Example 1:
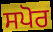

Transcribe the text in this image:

ਸਪੋਰ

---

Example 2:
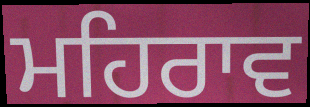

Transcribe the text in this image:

ਮਹਿਰਾਵ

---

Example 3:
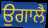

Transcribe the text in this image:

ਉਗਾਲੈ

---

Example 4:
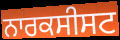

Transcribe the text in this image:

ਨਾਰਕਸੀਸਟ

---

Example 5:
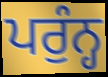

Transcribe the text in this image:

ਪਰੁੰਨ੍ਹ